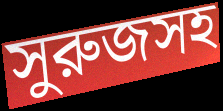
সুরুজসহ